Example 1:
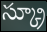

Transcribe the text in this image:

స్క్రూ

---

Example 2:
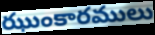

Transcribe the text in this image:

ఝుంకారములు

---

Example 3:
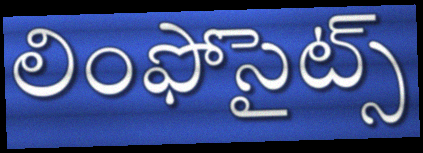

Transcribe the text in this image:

లింఫోసైట్స్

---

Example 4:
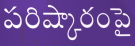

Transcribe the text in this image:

పరిష్కారంపై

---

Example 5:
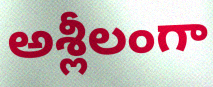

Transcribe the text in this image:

అశ్లీలంగా